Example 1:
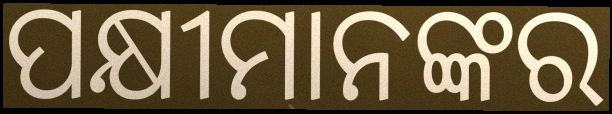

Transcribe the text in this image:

ପକ୍ଷୀମାନଙ୍କର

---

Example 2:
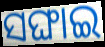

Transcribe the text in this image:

ସଙ୍ଘାଇ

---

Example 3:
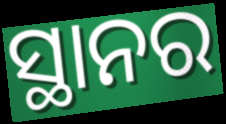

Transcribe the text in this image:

ସ୍ଥାନର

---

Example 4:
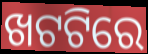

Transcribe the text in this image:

ଖଟଟିରେ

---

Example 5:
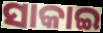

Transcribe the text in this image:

ସାକାଇ